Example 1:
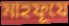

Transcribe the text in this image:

মাহফূযে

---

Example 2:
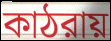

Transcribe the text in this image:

কাঠরায়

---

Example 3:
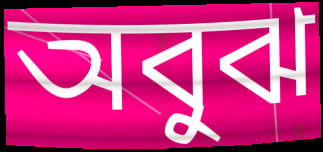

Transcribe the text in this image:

অবুঝ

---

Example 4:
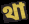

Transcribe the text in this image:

থা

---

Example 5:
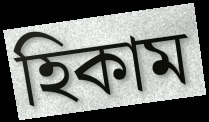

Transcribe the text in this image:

হিকাম